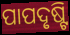
ପାପଦୃଷ୍ଟି